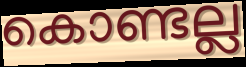
കൊണ്ടല്ല